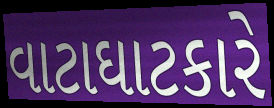
વાટાઘાટકારે